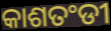
କାଶତଂଡୀ